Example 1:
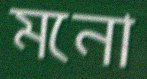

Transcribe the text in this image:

মনো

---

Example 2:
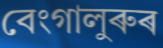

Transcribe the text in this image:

বেংগালুৰুৰ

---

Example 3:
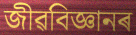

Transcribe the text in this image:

জীৱবিজ্ঞানৰ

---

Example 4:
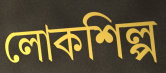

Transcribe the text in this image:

লোকশিল্প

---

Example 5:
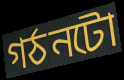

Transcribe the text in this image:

গঠনটো